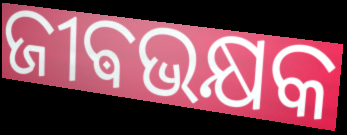
ଜୀଵଭକ୍ଷକ